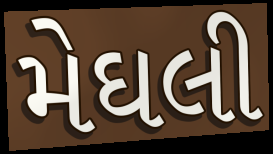
મેઘલી